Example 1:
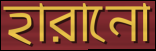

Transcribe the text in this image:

হারানো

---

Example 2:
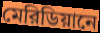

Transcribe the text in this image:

মেরিডিয়ানে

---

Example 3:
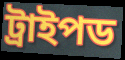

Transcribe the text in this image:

ট্রাইপড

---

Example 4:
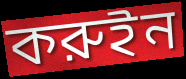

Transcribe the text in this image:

করুইন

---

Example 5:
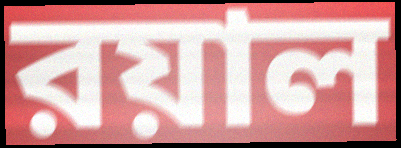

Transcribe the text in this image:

রয়াল